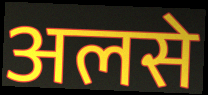
अलसे